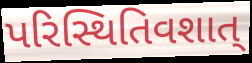
પરિસ્થિતિવશાત્